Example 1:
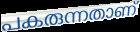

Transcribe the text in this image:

പകരുന്നതാണ്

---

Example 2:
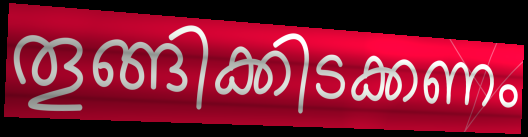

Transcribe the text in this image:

തൂങ്ങിക്കിടക്കണം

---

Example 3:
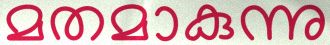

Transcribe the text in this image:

മതമാകുന്നു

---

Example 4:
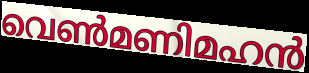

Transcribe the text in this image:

വെൺമണിമഹൻ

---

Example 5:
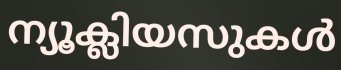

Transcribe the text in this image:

ന്യൂക്ലിയസുകൾ